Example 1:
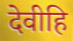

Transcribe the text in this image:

देवीहि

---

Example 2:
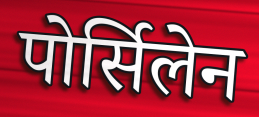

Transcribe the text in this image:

पोर्सिलेन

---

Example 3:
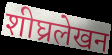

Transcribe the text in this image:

शीघ्रलेखन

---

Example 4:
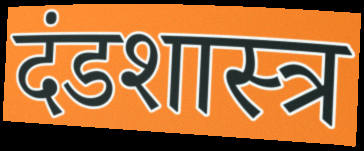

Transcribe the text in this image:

दंडशास्त्र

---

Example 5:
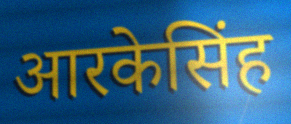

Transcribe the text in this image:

आरकेसिंह